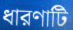
ধারণাটি